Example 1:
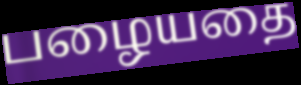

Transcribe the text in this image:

பழையதை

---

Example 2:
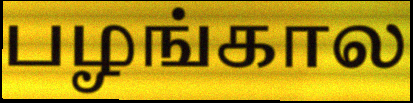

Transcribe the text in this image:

பழங்கால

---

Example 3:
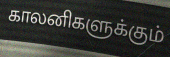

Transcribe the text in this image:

காலனிகளுக்கும்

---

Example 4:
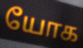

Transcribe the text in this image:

யோக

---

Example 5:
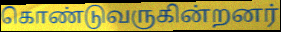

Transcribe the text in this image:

கொண்டுவருகின்றனர்